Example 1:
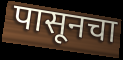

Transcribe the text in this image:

पासूनचा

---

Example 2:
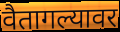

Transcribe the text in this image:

वैतागल्यावर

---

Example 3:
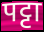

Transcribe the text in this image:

पट्टा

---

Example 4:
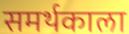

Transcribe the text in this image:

समर्थकाला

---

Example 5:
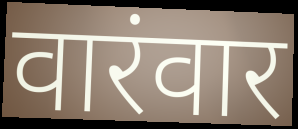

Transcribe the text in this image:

वारंवार